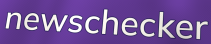
newschecker